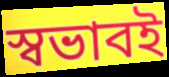
স্বভাবই